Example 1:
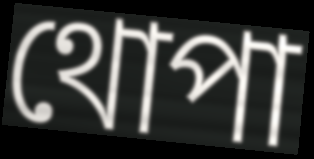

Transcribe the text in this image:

থোপা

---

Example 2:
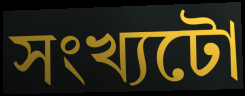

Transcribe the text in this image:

সংখ্যটো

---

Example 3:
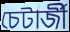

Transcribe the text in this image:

চেটাৰ্জী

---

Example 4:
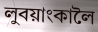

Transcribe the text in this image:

লুবয়াংকালৈ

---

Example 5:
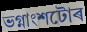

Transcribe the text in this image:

ভগ্নাংশটোৰ